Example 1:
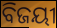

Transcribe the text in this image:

ବିଜୟୀ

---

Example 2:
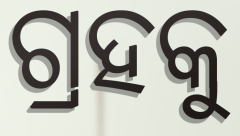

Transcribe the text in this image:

ଗ୍ରହକୁ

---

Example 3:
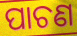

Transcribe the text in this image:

ପାଚଣ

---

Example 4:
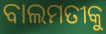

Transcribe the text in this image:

ବାଲମତୀକୁ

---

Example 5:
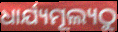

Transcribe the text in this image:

ଧାର୍ଯ୍ୟମୂଲ୍ୟଠୁ